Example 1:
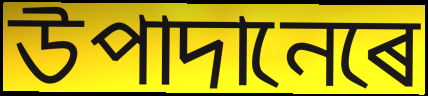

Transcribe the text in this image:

উপাদানেৰে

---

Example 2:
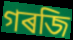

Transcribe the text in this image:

গৰজি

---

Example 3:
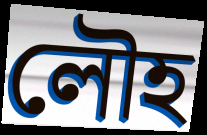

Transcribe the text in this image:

লৌহ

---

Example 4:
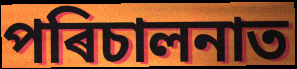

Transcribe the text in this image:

পৰিচালনাত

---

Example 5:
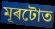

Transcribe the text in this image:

মূৰটোত